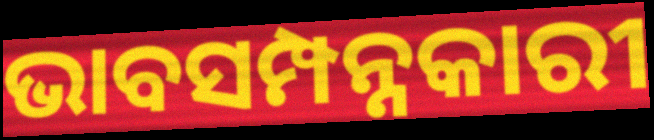
ଭାବସମ୍ପନ୍ନକାରୀ